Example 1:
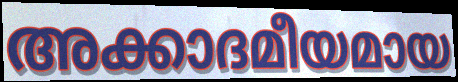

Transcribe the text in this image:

അക്കാദമീയമായ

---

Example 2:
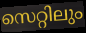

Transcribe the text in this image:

സെറ്റിലും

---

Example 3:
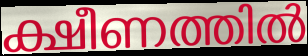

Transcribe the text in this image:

ക്ഷീണത്തിൽ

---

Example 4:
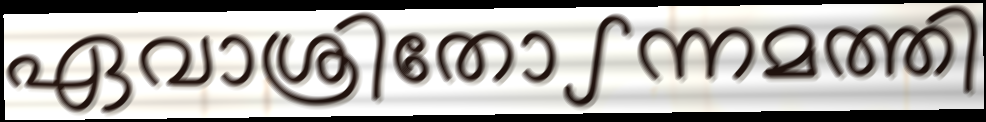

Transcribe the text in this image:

ഏവാശ്രിതോഽന്നമത്തി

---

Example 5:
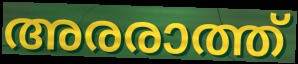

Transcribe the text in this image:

അരരാത്ത്